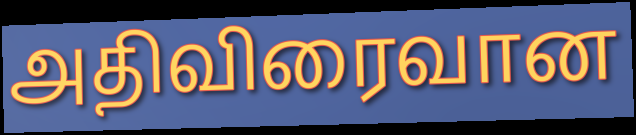
அதிவிரைவான